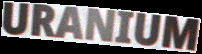
URANIUM